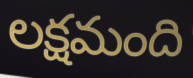
లక్షమంది